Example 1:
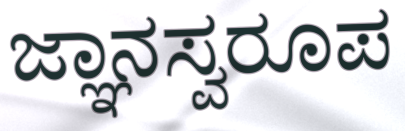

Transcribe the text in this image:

ಜ್ಞಾನಸ್ವರೂಪ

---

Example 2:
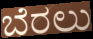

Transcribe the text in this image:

ಬೆರಲು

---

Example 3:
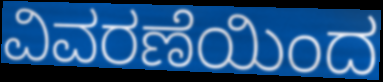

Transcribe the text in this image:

ವಿವರಣೆಯಿಂದ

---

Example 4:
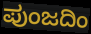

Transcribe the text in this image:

ಪುಂಜದಿಂ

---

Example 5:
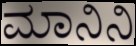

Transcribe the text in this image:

ಮಾನಿನಿ